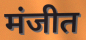
मंजीत